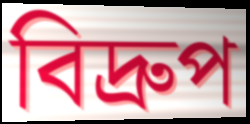
বিদ্রুপ